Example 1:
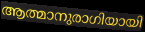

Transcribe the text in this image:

ആത്മാനുരാഗിയായി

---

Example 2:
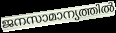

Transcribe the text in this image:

ജനസാമാന്യത്തിൽ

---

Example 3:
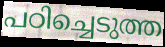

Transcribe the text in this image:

പഠിച്ചെടുത്ത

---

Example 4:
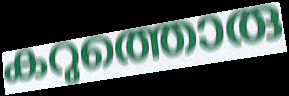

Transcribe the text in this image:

കറുത്തൊരു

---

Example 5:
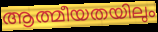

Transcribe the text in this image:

ആത്മീയതയിലും